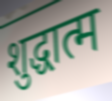
शुद्धात्म